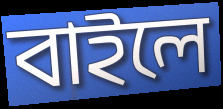
বাইলে